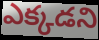
ఎక్కడని